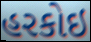
હરકોઇ